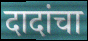
दादांचा